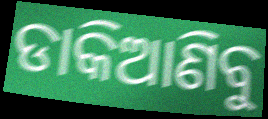
ଡାକିଆଣିବୁ